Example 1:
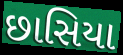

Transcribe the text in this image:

છાસિયા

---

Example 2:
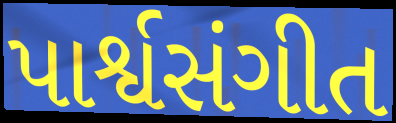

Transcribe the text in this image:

પાર્શ્વસંગીત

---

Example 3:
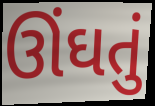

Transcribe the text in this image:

ઊંઘતું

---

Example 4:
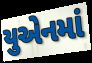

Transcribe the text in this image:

યુએનમાં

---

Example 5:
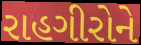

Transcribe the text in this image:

રાહગીરોને